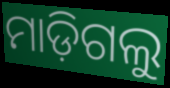
ମାଡ଼ିଗଲୁ